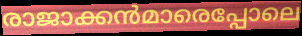
രാജാക്കൻമാരെപ്പോലെ